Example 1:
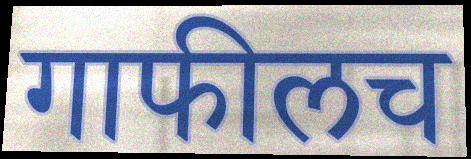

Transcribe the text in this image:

गाफीलच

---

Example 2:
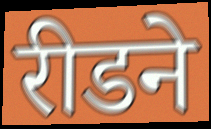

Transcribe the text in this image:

रीडने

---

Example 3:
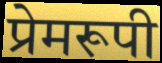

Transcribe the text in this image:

प्रेमरूपी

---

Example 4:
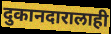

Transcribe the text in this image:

दुकानदारालाही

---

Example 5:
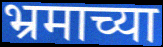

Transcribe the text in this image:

भ्रमाच्या